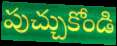
పుచ్చుకోండి